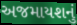
અજમાયશનું